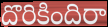
దొరికిందిరా